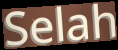
Selah